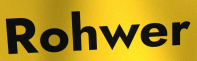
Rohwer